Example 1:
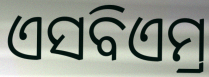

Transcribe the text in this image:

ଏସବିଏମ୍ର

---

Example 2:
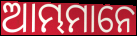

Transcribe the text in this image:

ଆମ୍ଭମାନେ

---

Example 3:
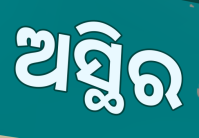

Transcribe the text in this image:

ଅସ୍ଥିର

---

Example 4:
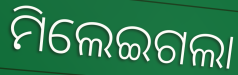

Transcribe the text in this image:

ମିଲେଇଗଲା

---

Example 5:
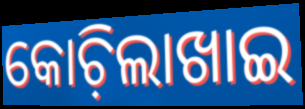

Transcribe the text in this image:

କୋଚ଼ିଲାଖାଇ